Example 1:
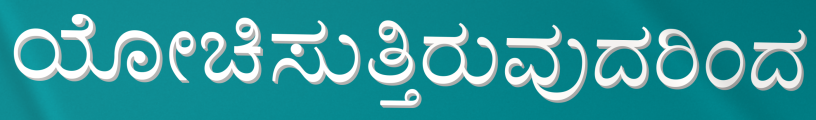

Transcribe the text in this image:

ಯೋಚಿಸುತ್ತಿರುವುದರಿಂದ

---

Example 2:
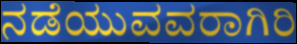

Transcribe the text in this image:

ನಡೆಯುವವರಾಗಿರಿ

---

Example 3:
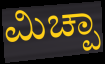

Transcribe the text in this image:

ಮಿಚ್ಪಾ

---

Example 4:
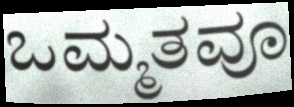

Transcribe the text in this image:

ಒಮ್ಮತವೂ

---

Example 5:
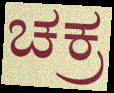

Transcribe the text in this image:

ಚಕ್ರ